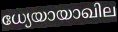
ധ്യേയായാഖില